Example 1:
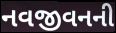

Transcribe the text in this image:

નવજીવનની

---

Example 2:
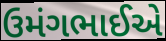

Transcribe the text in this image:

ઉમંગભાઈએ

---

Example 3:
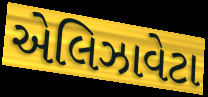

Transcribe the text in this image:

એલિઝાવેટા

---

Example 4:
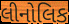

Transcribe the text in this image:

લીનોલિક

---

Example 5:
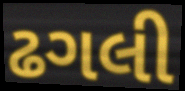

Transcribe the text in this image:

ઢગલી